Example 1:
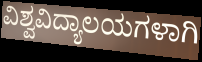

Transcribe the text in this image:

ವಿಶ್ವವಿದ್ಯಾಲಯಗಳಾಗಿ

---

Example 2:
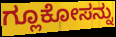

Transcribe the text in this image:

ಗ್ಲೂಕೋಸನ್ನು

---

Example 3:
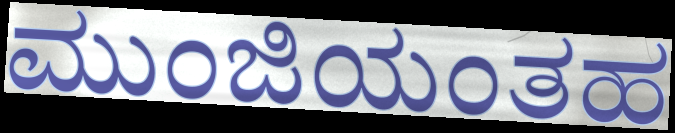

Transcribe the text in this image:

ಮುಂಜಿಯಂತಹ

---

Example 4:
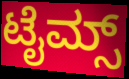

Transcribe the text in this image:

ಟೈಮ್ಸ್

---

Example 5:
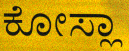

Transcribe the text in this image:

ಕೋಸ್ಲಾ